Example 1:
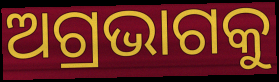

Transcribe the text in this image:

ଅଗ୍ରଭାଗକୁ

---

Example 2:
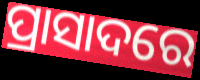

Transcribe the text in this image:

ପ୍ରାସାଦରେ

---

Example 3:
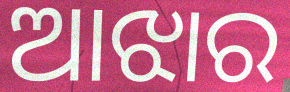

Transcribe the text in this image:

ଆଝାର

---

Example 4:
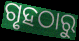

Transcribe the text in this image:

ଗୃହଠାରୁ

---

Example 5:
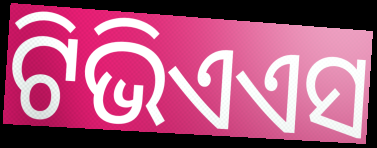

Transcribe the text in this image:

ଟିଭିଏଏସ